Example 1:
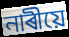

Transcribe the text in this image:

নাৰীয়ে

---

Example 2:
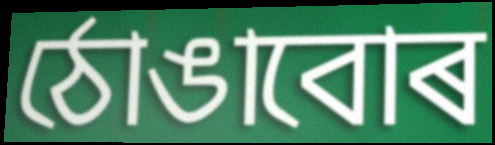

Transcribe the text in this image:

ঠোঙাবোৰ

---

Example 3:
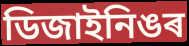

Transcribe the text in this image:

ডিজাইনিঙৰ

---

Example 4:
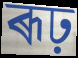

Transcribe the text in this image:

ৰূঢ়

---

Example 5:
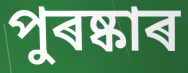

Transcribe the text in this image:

পুৰষ্কাৰ